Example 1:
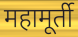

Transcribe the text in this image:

महामूर्ती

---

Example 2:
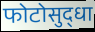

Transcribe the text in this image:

फोटोसुद्धा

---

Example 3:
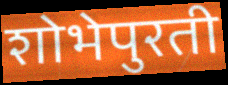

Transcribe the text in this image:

शोभेपुरती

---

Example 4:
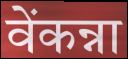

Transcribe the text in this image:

वेंकन्ना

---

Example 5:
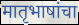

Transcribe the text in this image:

मातृभाषांचा